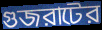
গুজরাটের